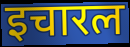
इचारल